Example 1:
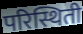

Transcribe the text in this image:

परिस्थिती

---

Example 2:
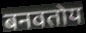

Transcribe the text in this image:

बनवतोय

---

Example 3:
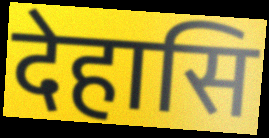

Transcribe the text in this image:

देहासि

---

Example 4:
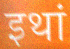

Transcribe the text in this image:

इथां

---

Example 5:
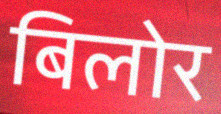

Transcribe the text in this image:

बिलोर